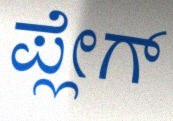
ಪ್ಲೇಗ್